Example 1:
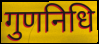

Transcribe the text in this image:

गुणनिधि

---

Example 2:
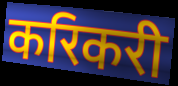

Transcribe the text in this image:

करिकरी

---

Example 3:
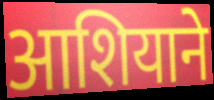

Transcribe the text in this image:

आशियाने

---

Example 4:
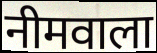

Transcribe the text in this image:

नीमवाला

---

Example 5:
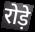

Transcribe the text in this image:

रोड़े